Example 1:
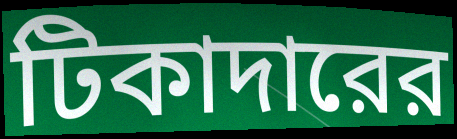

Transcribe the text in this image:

টিকাদারের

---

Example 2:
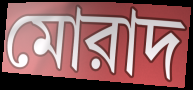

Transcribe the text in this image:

মোরাদ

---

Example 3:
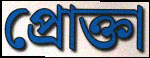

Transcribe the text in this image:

প্রোক্তা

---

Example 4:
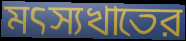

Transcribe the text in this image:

মৎস্যখাতের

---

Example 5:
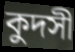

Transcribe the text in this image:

কুদসী